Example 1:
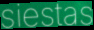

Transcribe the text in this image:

siestas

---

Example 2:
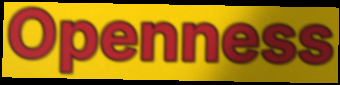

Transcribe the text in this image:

Openness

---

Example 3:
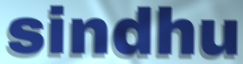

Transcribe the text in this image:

sindhu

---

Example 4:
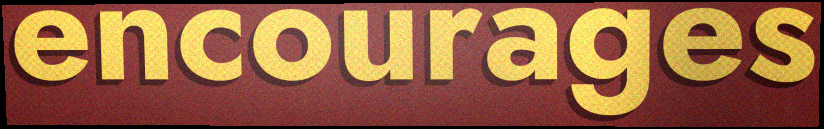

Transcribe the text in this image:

encourages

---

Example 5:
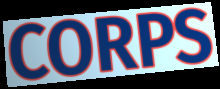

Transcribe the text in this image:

CORPS